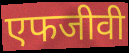
एफजीवी